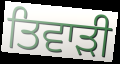
ਤਿਵਾੜੀ